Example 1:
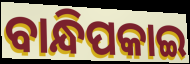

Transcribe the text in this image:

ବାନ୍ଧିପକାଇ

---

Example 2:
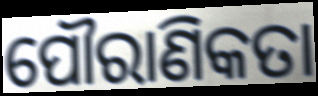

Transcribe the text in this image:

ପୌରାଣିକତା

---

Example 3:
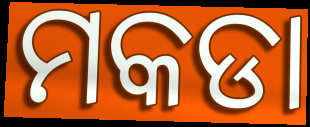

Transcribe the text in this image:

ମକଡା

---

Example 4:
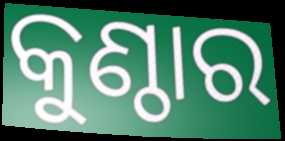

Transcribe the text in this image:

କୁଣ୍ଠାର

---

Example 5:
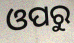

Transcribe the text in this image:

ଓପରୁ